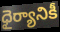
ధైర్యానికీ